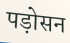
पड़ोसन